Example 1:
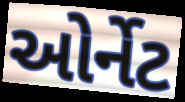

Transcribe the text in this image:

ઓર્નેટ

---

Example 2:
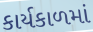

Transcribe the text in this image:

કાર્યકાળમાં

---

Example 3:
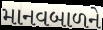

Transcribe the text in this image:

માનવબાળને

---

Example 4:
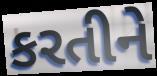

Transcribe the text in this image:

કરતીને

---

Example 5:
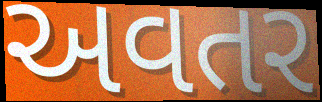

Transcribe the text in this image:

અવતર